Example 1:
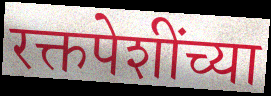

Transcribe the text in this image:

रक्तपेशींच्या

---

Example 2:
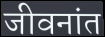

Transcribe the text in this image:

जीवनांत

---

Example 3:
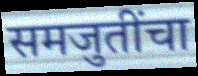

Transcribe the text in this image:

समजुतींचा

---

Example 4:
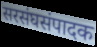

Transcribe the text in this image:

सरसंघसंपादक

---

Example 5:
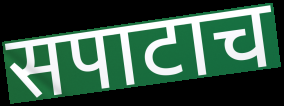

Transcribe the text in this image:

सपाटाच